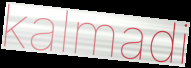
kalmadi